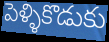
పెళ్ళికొడుకు